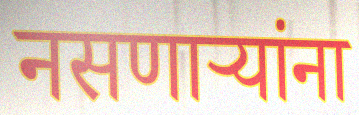
नसणाऱ्यांना